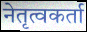
नेतृत्‍वकर्ता